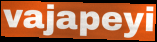
vajapeyi